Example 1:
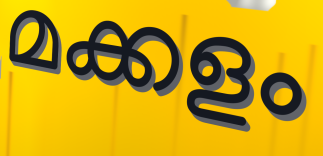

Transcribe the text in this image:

മക്കളം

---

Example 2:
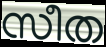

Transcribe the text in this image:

സീത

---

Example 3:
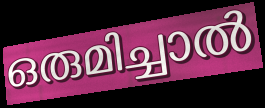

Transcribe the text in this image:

ഒരുമിച്ചാൽ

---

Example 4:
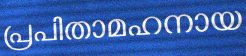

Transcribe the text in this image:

പ്രപിതാമഹനായ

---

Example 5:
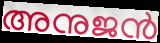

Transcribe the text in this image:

അനുജൻ